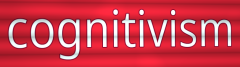
cognitivism